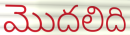
మొదలిది